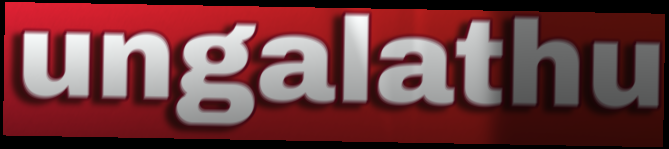
ungalathu